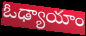
ఓఢ్యాయాం